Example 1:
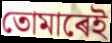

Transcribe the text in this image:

তোমাৰেই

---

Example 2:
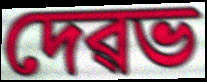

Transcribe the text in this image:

দেৱভ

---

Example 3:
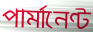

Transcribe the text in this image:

পাৰ্মানেণ্ট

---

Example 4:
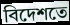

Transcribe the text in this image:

বিদেশতে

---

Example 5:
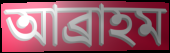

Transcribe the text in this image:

আব্ৰাহম